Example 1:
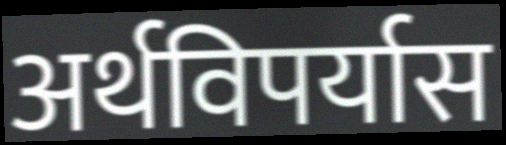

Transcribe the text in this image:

अर्थविपर्यास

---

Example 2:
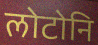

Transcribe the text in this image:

लोटोनि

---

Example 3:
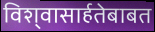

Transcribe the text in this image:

विश्वासार्हतेबाबत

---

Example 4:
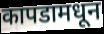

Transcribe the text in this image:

कापडामधून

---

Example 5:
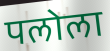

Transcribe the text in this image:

पलोला